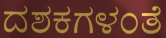
ದಶಕಗಳಂತೆ